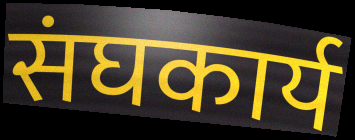
संघकार्य